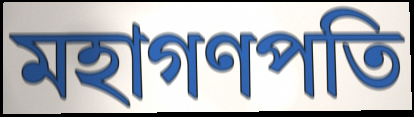
মহাগণপতি